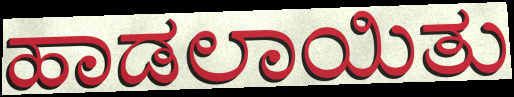
ಹಾಡಲಾಯಿತು